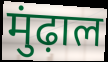
मुंढ़ाल